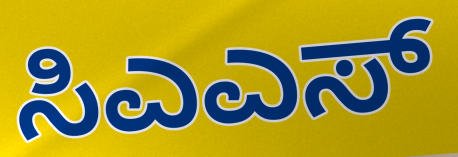
ಸಿಎಎಸ್